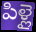
పిళ్లై